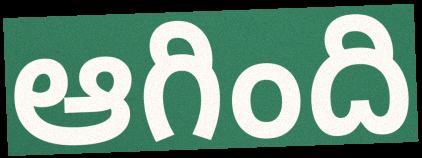
ఆగింది